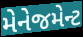
મેનેજમેન્ટ